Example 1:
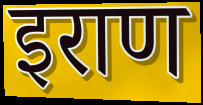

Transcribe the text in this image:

इराण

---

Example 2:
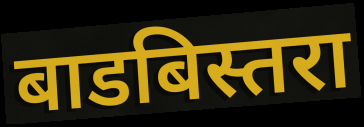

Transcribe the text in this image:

बाडबिस्तरा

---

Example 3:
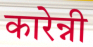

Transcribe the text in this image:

कारेन्नी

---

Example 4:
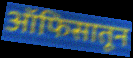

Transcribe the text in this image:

ऑफिसातून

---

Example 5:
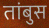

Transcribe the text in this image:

तांबुस